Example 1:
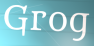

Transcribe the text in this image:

Grog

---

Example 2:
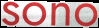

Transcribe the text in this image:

sono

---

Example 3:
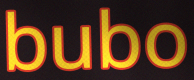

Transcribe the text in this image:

bubo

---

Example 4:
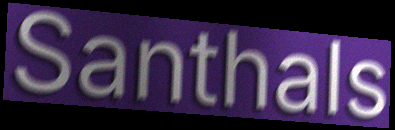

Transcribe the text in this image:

Santhals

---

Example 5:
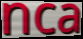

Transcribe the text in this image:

nca